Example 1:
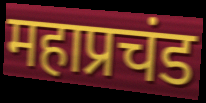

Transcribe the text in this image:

महाप्रचंड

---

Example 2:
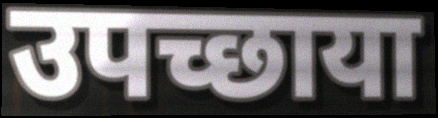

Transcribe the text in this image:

उपच्छाया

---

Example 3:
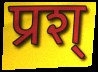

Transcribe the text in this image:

प्रश्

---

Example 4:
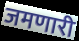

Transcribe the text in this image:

जमणारी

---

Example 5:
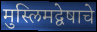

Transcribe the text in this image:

मुस्लिमद्वेषाचे